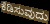
ಕೆಡಿಸುವುದು